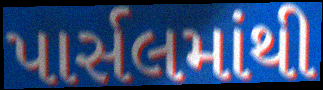
પાર્સલમાંથી